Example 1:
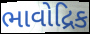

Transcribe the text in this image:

ભાવોદ્રિક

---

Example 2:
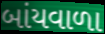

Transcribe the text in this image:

બાંયવાળા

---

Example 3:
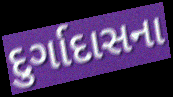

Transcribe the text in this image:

દુર્ગાદાસના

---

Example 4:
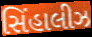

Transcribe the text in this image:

સિંહાલીઝ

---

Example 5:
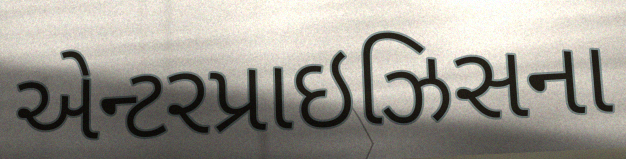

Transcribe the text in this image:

એન્ટરપ્રાઇઝિસના